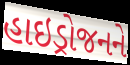
હાઇડ્રોજનને